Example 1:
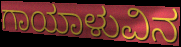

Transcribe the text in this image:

ಗಾಯಾಳುವಿನ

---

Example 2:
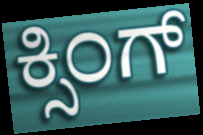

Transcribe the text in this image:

ಕ್ಸಿಂಗ್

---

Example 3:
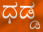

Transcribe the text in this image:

ಧಡ್ಡ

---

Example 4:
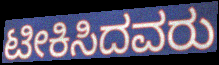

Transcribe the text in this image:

ಟೀಕಿಸಿದವರು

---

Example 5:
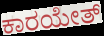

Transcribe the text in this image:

ಕಾರಯೇತ್